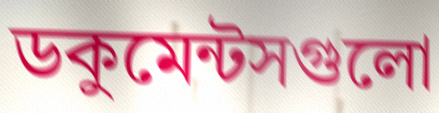
ডকুমেন্টসগুলো